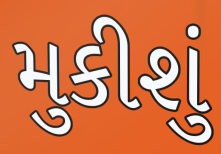
મુકીશું